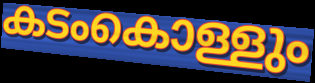
കടംകൊള്ളും